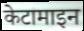
केटामाइन